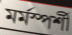
মৰ্মস্পৰ্শী